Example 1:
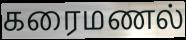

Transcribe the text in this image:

கரைமணல்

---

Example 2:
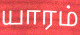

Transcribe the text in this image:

யாரம்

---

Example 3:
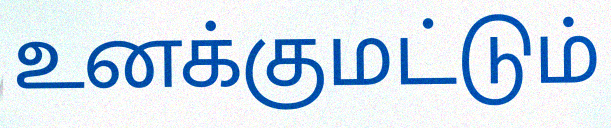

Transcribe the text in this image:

உனக்குமட்டும்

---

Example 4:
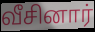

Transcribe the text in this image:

வீசினார்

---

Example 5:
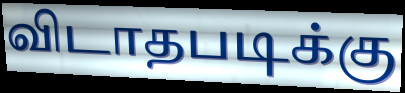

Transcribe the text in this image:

விடாதபடிக்கு